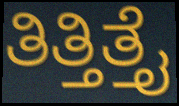
ತಿತ್ತಿತ್ತೈ